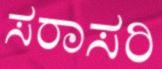
ಸರಾಸರಿ